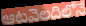
ఆటవెలదిలోనే